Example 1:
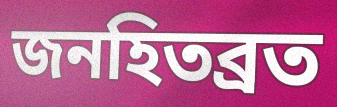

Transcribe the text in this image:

জনহিতব্রত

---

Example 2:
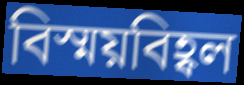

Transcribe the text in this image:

বিস্ময়বিহ্বল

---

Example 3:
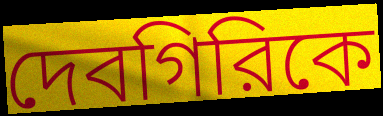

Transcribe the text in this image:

দেবগিরিকে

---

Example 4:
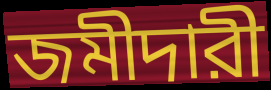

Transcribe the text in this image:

জমীদারী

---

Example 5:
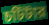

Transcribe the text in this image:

চটিটার